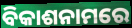
ବିକାଶନାମରେ